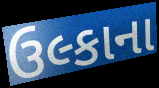
ઉલ્કાના